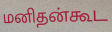
மனிதன்கூட